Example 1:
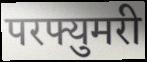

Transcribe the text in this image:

परफ्युमरी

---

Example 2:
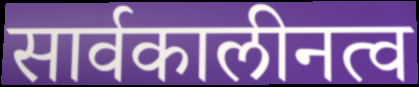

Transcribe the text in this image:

सार्वकालीनत्व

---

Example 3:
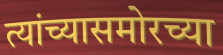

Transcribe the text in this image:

त्यांच्यासमोरच्या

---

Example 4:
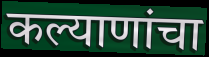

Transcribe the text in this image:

कल्याणांचा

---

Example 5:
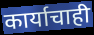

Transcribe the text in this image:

कार्याचाही